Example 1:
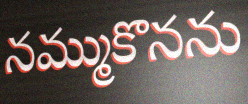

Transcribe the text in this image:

నమ్ముకొనను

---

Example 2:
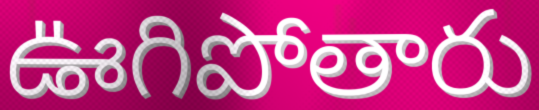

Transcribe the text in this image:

ఊగిపోతారు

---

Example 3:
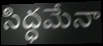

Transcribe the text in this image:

సిద్ధమేనా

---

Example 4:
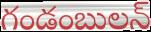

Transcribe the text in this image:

గండంబులన్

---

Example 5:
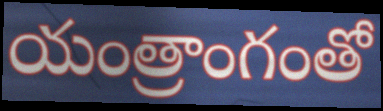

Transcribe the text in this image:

యంత్రాంగంతో